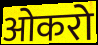
ओकरो